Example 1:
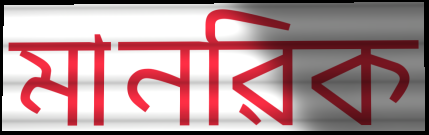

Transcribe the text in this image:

মানৱিক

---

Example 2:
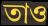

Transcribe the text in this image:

তাও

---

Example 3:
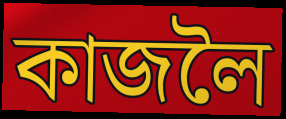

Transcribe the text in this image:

কাজলৈ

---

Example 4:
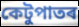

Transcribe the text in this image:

কেটুপাতৰ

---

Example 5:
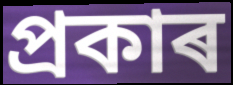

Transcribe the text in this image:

প্ৰকাৰ